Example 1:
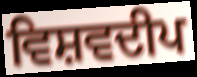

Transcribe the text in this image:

ਵਿਸ਼ਵਦੀਪ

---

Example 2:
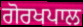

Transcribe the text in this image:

ਗੋਰਖਪਾਲ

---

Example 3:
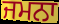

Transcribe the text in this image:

ਜਮਨਾ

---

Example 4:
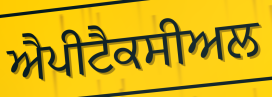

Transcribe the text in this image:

ਐਪੀਟੈਕਸੀਅਲ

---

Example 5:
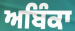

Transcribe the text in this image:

ਅਬਿੰਕਾ